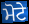
ਮੋਟੇ